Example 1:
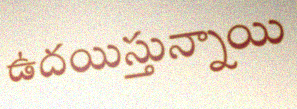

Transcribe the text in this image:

ఉదయిస్తున్నాయి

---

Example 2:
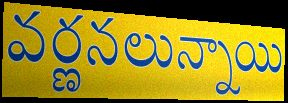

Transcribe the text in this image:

వర్ణనలున్నాయి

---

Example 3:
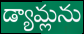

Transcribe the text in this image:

డ్యామ్లను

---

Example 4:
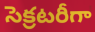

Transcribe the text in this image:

సెక్రటరీగా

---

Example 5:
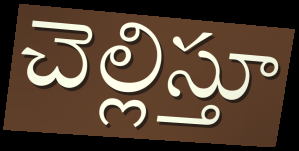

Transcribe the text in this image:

చెల్లిస్తూ